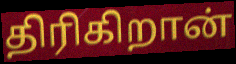
திரிகிறான்